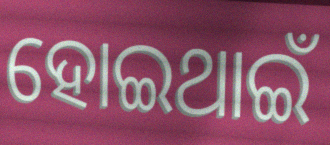
ହୋଇଥାଇଁ